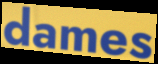
dames